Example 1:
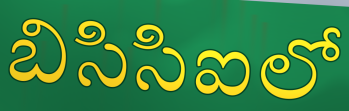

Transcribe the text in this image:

బిసిసిఐలో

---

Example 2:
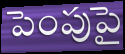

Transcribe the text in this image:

పెంపుపై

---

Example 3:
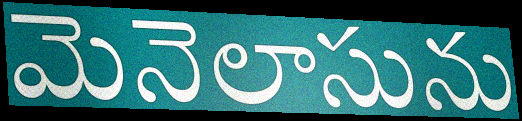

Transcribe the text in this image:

మెనెలాసును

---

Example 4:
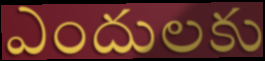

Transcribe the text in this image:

ఎందులకు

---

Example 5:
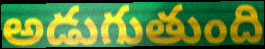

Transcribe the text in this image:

అడుగుతుంది